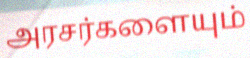
அரசர்களையும்